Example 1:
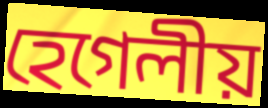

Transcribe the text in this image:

হেগেলীয়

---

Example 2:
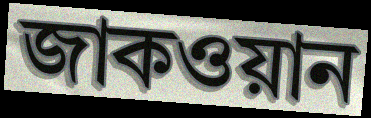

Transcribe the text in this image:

জাকওয়ান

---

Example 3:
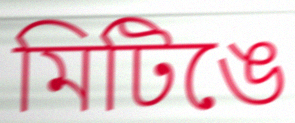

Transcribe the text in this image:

মিটিঙে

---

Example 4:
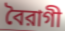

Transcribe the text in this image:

বৈরাগী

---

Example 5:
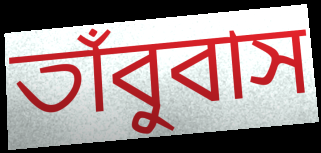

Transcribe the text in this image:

তাঁবুবাস